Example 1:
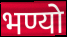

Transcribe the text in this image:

भण्यो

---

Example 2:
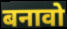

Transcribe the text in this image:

बनावो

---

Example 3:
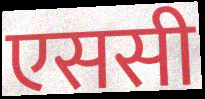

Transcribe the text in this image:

एससी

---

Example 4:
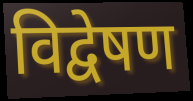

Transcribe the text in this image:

विद्वेषण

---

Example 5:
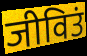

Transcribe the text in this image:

जीविउं